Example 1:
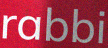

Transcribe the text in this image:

rabbi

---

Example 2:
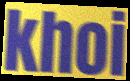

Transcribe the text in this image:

khoi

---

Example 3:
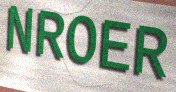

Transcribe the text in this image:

NROER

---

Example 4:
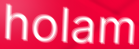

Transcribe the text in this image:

holam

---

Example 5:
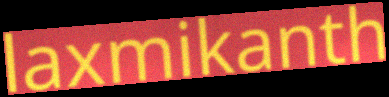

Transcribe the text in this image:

laxmikanth